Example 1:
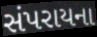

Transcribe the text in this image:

સંપરાયના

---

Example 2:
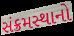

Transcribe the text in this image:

સંક્રમસ્થાનો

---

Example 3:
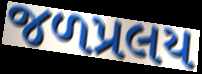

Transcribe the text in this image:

જળપ્રલય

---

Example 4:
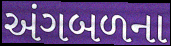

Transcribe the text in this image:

અંગબળના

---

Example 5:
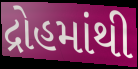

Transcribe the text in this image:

દ્રોહમાંથી